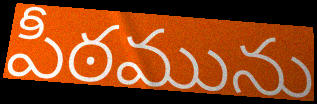
పీఠమును